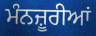
ਮੰਨਜ਼ੂਰੀਆਂ